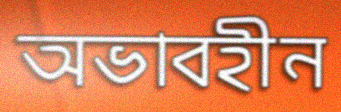
অভাবহীন